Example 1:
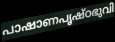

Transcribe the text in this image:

പാഷാണപൃഷ്ഠഭുവി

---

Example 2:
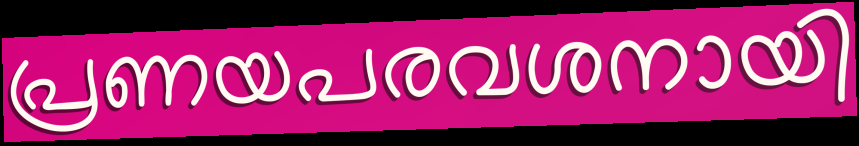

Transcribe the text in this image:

പ്രണയപരവശനായി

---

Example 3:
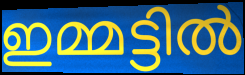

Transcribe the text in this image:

ഇമ്മട്ടിൽ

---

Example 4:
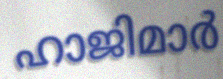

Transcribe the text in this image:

ഹാജിമാർ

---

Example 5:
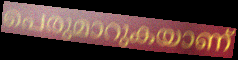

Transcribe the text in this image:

പെരുമാറുകയാണ്